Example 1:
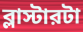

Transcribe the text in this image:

ব্লাস্টারটা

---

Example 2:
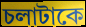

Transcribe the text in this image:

চলাটাকে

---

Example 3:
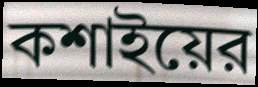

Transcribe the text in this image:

কশাইয়ের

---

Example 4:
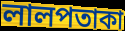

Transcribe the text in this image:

লালপতাকা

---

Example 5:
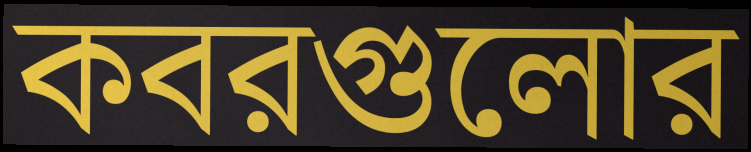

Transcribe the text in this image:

কবরগুলোর